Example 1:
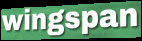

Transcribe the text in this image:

wingspan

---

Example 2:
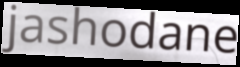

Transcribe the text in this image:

jashodane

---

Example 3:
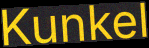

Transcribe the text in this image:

Kunkel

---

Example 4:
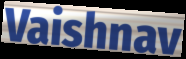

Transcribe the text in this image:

Vaishnav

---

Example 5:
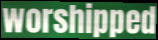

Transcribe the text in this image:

worshipped